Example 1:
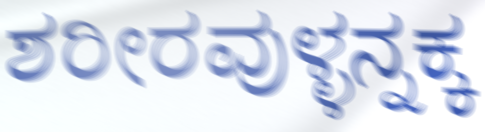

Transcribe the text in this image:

ಶರೀರವುಳ್ಳನ್ನಕ್ಕ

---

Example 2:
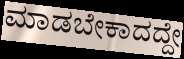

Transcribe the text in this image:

ಮಾಡಬೇಕಾದದ್ದೇ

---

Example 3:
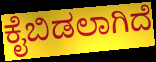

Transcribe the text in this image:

ಕೈಬಿಡಲಾಗಿದೆ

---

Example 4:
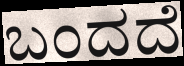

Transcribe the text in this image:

ಬಂದದೆ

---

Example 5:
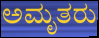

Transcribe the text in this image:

ಅಮೃತರು